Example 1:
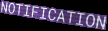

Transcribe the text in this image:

NOTIFICATION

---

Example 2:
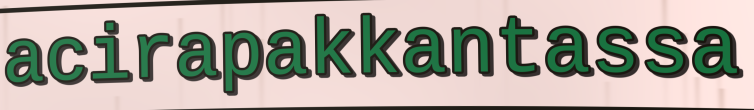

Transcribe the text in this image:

acirapakkantassa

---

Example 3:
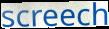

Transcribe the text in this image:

screech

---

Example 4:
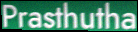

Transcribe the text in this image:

Prasthutha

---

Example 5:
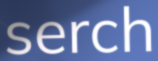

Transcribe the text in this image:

serch